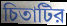
চিতাটির